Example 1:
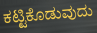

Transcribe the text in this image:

ಕಟ್ಟಿಕೊಡುವುದು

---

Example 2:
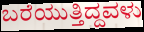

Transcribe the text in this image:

ಬರೆಯುತ್ತಿದ್ದವಳು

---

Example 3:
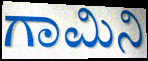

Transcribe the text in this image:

ಗಾಮಿನಿ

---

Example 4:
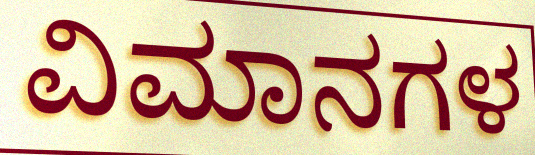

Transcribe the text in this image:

ವಿಮಾನಗಳ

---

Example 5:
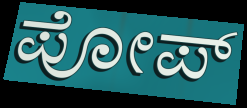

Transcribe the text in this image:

ಪೋಪ್